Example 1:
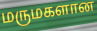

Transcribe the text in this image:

மருமகளான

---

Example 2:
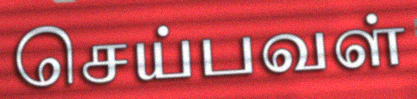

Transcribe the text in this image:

செய்பவள்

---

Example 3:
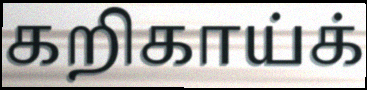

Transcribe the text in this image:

கறிகாய்க்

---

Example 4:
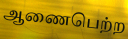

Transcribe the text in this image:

ஆணைபெற்ற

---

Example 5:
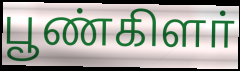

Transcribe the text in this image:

பூண்கிளர்